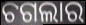
ଚଗଲାର